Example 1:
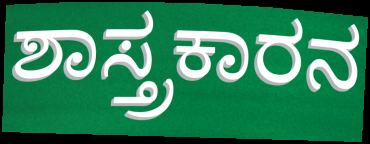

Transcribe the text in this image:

ಶಾಸ್ತ್ರಕಾರನ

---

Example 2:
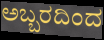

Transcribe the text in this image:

ಅಬ್ಬರದಿಂದ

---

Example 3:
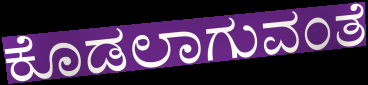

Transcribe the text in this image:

ಕೊಡಲಾಗುವಂತೆ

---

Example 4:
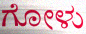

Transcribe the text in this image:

ಗೋಳು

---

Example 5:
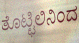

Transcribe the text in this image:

ತೊಟ್ಟಿಲಿನಿಂದ